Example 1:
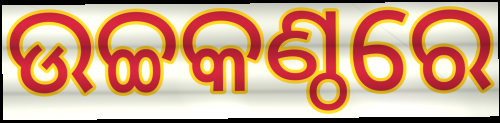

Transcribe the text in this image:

ଉଚ୍ଚକଣ୍ଠରେ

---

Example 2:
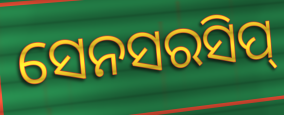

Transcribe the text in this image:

ସେନସରସିପ୍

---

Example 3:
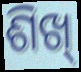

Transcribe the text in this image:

ଶିଖ୍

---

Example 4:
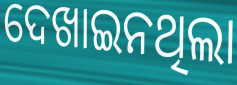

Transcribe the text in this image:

ଦେଖାଇନଥିଲା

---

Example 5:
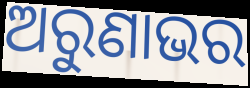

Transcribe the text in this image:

ଅରୁଣାଭର